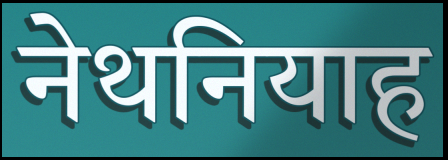
नेथनियाह